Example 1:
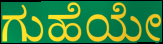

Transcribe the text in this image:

ಗುಹೆಯೇ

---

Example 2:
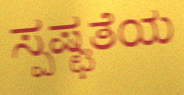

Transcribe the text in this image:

ಸ್ಪಷ್ಟತೆಯ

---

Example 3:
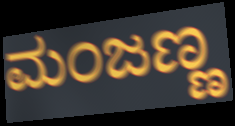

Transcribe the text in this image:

ಮಂಜಣ್ಣ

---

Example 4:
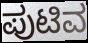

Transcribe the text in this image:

ಪುಟಿವ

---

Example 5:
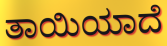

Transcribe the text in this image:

ತಾಯಿಯಾದೆ